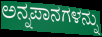
ಅನ್ನಪಾನಗಳನ್ನು